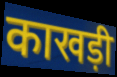
काखड़ी